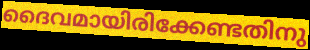
ദൈവമായിരിക്കേണ്ടതിനു